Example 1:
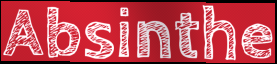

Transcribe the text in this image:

Absinthe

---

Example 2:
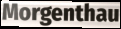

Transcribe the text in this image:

Morgenthau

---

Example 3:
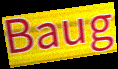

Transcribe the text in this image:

Baug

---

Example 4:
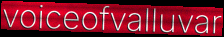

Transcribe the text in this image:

voiceofvalluvar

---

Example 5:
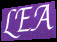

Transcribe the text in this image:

LEA